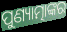
ପୁଣ୍ୟାତ୍ମାଙ୍କର